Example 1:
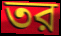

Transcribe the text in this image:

তর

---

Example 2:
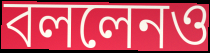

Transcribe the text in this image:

বললেনও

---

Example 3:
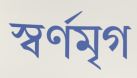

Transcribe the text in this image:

স্বর্ণমৃগ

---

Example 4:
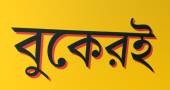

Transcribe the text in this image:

বুকেরই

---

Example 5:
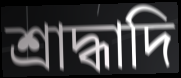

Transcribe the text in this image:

শ্রাদ্ধাদি